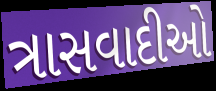
ત્રાસવાદીઓ